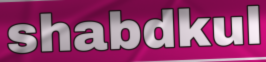
shabdkul